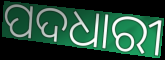
ପଦଧାରୀ